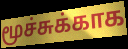
மூச்சுக்காக